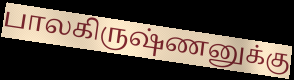
பாலகிருஷ்ணனுக்கு